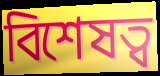
বিশেষত্ব